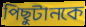
পিছুটানকে